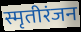
स्मृतीरंजन